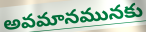
అవమానమునకు